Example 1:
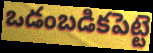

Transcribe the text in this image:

ఒడంబడికపెట్టె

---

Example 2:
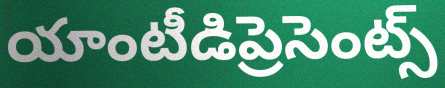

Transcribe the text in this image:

యాంటీడిప్రెసెంట్స్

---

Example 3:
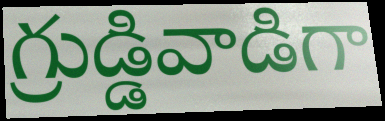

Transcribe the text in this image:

గ్రుడ్డివాడిగా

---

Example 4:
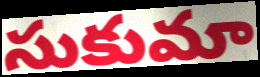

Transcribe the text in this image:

సుకుమా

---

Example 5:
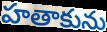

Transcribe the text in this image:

హతాకును